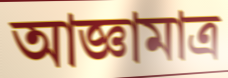
আজ্ঞামাত্র